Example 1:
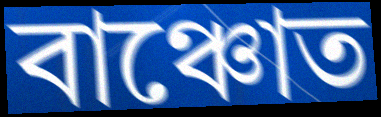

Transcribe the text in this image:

বাঞ্চোত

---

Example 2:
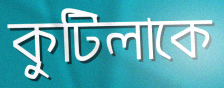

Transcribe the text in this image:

কুটিলাকে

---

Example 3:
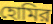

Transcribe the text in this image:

হোমির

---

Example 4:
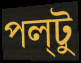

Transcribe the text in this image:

পল্‌টু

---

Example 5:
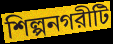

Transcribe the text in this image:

শিল্পনগরীটি